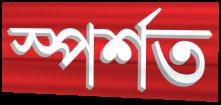
স্পৰ্শত